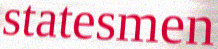
statesmen